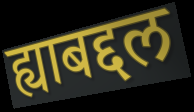
ह्याबद्दल